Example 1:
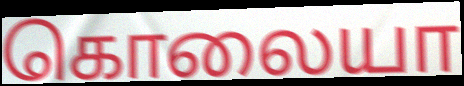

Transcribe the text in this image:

கொலையா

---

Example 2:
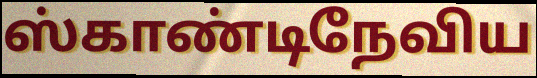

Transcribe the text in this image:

ஸ்காண்டிநேவிய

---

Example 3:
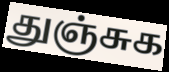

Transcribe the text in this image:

துஞ்சுக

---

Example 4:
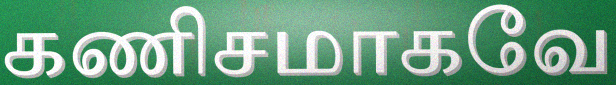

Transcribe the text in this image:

கணிசமாகவே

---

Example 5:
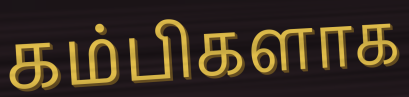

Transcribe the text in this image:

கம்பிகளாக